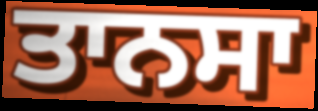
ਤਾਨਸਾ